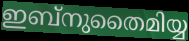
ഇബ്നുതൈമിയ്യ